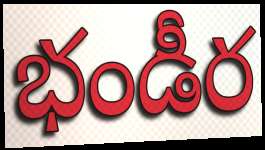
భండీర